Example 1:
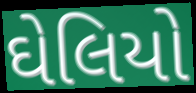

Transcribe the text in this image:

ઘેલિયો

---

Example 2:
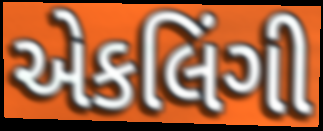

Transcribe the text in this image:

એકલિંગી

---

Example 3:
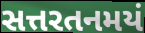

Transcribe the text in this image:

સત્તરતનમયં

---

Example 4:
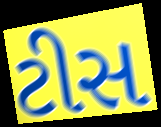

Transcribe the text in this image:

ટીસ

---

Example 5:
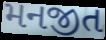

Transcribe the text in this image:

મનજીત